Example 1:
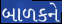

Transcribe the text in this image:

બાળકને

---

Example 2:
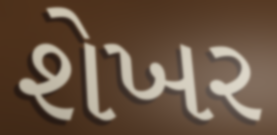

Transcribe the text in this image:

શેખર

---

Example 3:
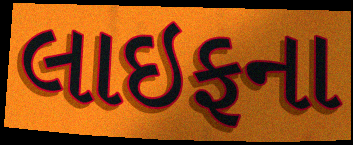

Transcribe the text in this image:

લાઇફના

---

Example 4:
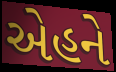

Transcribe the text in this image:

એહને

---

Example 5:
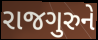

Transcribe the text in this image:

રાજગુરુને